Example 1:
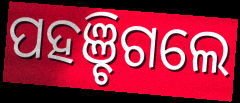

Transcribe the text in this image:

ପହଞ୍ଚିଗଲେ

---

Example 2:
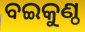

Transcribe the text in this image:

ବଇକୁଣ୍ଠ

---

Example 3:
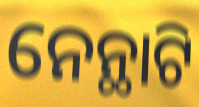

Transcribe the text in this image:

ନେନ୍ଥାଟି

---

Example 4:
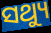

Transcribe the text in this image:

ସଥ୍ୟୁ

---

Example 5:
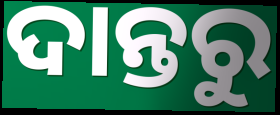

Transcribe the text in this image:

ଦାନ୍ତରୁ